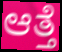
ಆತ್ತೆ